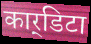
कार्डिटा